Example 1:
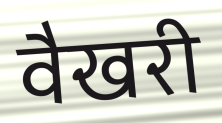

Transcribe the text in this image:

वैखरी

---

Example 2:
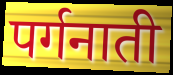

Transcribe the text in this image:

पर्गनाती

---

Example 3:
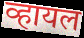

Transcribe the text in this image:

व्हायल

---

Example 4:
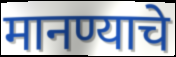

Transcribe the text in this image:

मानण्याचे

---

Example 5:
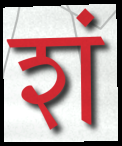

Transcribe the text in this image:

शं